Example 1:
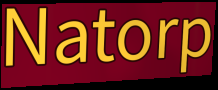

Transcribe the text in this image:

Natorp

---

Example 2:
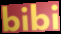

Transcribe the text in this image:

bibi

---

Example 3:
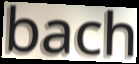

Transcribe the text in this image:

bach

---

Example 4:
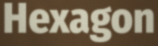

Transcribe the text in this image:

Hexagon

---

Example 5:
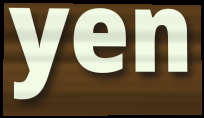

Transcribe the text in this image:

yen